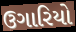
ઉગારિયો